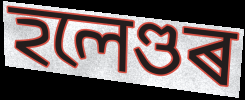
হলেণ্ডৰ